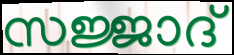
സജ്ജാദ്